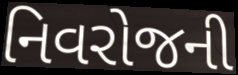
નિવરોજની